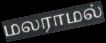
மலராமல்